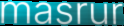
masrur